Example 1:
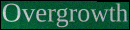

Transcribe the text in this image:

Overgrowth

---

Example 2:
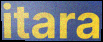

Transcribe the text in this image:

itara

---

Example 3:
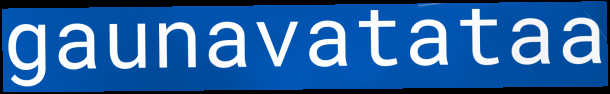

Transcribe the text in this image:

gaunavatataa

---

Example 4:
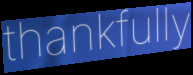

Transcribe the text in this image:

thankfully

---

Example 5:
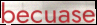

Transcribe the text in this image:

becuase